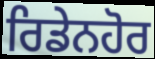
ਰਿਡੇਨਹੋਰ